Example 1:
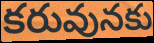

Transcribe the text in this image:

కరువునకు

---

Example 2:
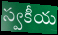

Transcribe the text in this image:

స్వకీయ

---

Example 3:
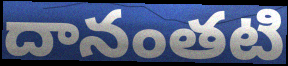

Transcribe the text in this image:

దానంతటి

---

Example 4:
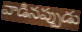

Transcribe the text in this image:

వాడినప్పుడు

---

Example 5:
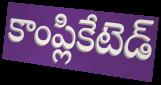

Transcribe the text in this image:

కాంప్లికేటెడ్